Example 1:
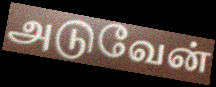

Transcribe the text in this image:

அடுவேன்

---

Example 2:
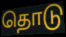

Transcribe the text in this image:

தொடு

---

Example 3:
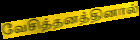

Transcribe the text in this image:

வேசித்தனத்தினால்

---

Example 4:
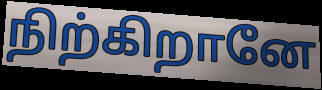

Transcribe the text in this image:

நிற்கிறானே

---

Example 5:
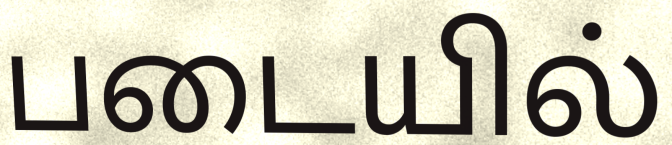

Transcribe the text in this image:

படையில்